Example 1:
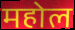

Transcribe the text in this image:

महोल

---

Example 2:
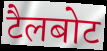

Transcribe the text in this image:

टैलबोट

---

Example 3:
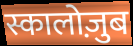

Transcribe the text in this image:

स्कालोज़ुब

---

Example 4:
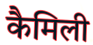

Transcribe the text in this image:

कैमिली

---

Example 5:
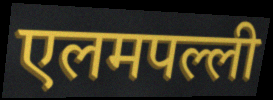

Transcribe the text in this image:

एलमपल्ली